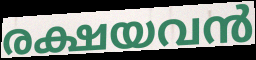
രക്ഷയവൻ